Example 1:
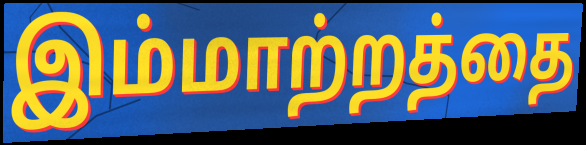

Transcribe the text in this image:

இம்மாற்றத்தை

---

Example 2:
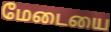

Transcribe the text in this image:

மேடையை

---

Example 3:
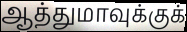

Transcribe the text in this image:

ஆத்துமாவுக்குக்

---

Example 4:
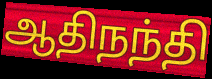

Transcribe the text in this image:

ஆதிநந்தி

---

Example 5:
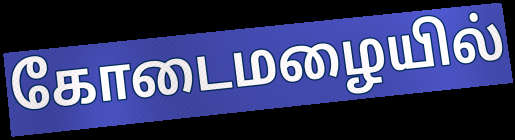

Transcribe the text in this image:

கோடைமழையில்